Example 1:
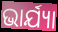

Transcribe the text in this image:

ଭାର୍ଯ୍ୟା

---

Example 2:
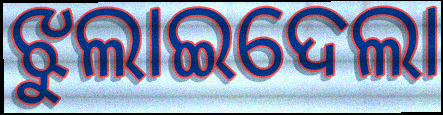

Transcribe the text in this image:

ଝୁଲାଇଦେଲା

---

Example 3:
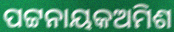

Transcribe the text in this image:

ପଟ୍ଟନାୟକଅମିଶ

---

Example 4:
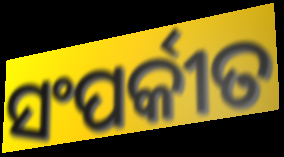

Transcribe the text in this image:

ସଂପର୍କୀତ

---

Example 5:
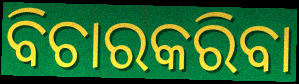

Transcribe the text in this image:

ବିଚାରକରିବା